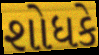
શોધકે